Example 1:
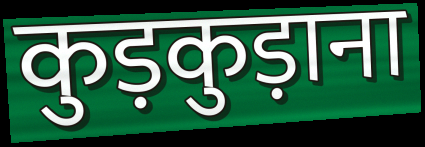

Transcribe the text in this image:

कुड़कुड़ाना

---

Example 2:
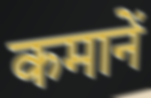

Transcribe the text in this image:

कमानें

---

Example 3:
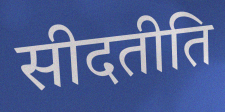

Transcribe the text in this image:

सीदतीति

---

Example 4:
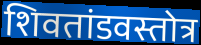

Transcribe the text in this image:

शिवतांडवस्तोत्र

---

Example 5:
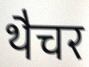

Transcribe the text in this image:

थैचर